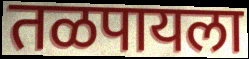
तळपायला